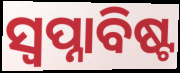
ସ୍ୱପ୍ନାବିଷ୍ଟ